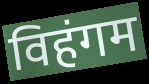
विहंगम